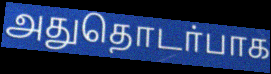
அதுதொடர்பாக